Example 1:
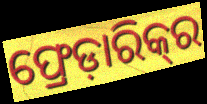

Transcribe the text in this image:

ଫ୍ରେଡ଼ାରିକ୍‍ର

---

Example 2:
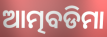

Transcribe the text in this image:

ଆତ୍ମବଡିମା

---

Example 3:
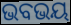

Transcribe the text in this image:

ଭବଭୟ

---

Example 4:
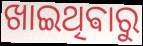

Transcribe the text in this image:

ଖାଇଥିଵାରୁ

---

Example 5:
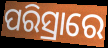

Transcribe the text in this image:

ପରିସ୍ରାରେ